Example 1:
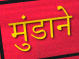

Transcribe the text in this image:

मुंडाने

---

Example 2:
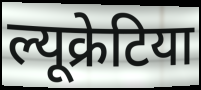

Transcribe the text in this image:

ल्यूक्रेटिया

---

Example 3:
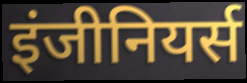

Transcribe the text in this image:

इंजीनियर्स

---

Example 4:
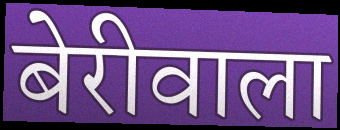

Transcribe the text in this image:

बेरीवाला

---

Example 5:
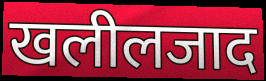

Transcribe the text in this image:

खलीलजाद